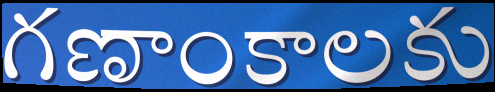
గణాంకాలకు